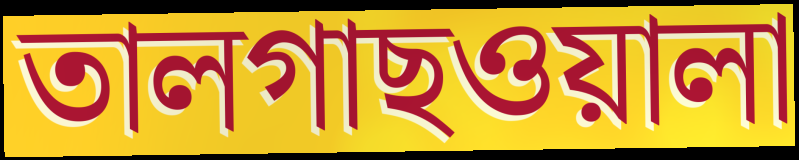
তালগাছওয়ালা